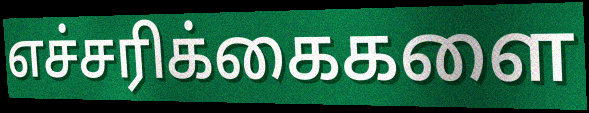
எச்சரிக்கைகளை